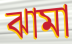
ঝামা